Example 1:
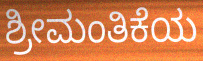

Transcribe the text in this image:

ಶ್ರೀಮಂತಿಕೆಯ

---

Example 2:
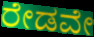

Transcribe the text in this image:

ರೇಡವೇ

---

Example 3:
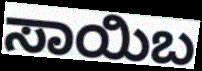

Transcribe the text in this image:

ಸಾಯಿಬ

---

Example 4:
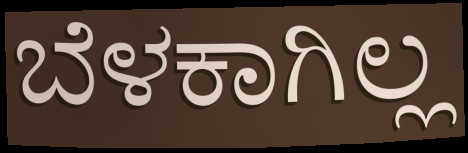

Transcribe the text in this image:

ಬೆಳಕಾಗಿಲ್ಲ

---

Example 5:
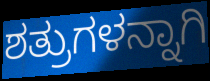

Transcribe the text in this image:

ಶತ್ರುಗಳನ್ನಾಗಿ